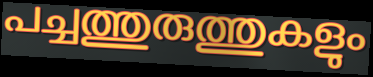
പച്ചത്തുരുത്തുകളും